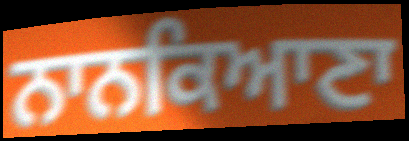
ਨਾਨਕਿਆਣਾ